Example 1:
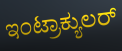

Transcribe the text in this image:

ಇಂಟ್ರಾಕ್ಯುಲರ್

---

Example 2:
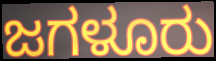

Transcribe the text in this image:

ಜಗಳೂರು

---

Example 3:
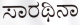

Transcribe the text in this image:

ಸಾರಥಿನಾ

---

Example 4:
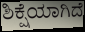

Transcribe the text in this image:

ಶಿಕ್ಷೆಯಾಗಿದೆ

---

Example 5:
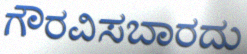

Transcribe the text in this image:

ಗೌರವಿಸಬಾರದು